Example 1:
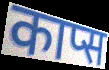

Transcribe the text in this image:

काप्स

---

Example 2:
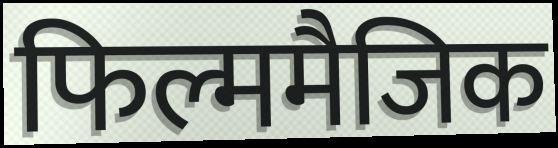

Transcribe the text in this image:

फिल्ममैजिक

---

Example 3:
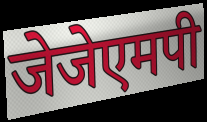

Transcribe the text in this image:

जेजेएमपी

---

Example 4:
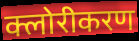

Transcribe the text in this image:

क्लोरीकरण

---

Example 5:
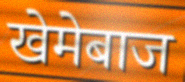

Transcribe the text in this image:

खेमेबाज